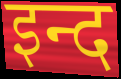
इन्द